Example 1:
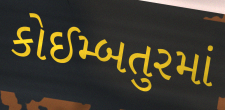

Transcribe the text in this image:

કોઈમ્બતુરમાં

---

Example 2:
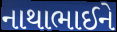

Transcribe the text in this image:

નાથાભાઈને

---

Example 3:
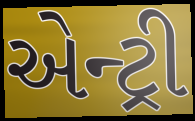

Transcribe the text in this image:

એન્‍ટ્રી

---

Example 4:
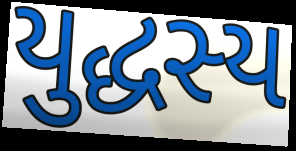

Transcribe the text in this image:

યુદ્ધસ્ય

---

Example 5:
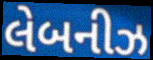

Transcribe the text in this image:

લેબનીઝ